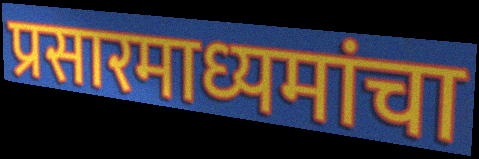
प्रसारमाध्यमांचा